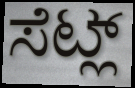
ಸೆಟ್ಲ್